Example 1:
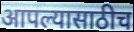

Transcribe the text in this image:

आपल्यासाठीच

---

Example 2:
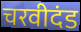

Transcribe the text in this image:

चरवीदंड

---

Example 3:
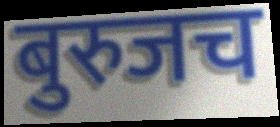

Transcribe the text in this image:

बुरुजच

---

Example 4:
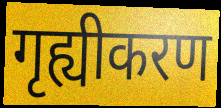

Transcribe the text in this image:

गृह्यीकरण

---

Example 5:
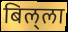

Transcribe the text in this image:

बिल्ला